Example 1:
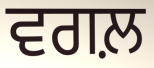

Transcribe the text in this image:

ਵਗਲ਼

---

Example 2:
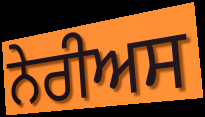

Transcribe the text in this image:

ਨੇਰੀਅਸ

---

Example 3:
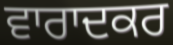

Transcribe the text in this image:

ਵਾਰਾਦਕਰ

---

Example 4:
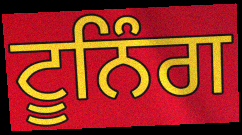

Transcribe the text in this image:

ਟੂਨਿੰਗ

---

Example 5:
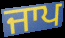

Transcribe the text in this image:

ਜਾਪ